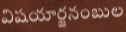
విషయార్జనంబుల